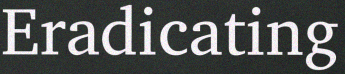
Eradicating